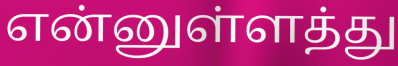
என்னுள்ளத்து